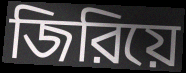
জিরিয়ে